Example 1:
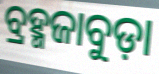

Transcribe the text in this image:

ବ୍ରହ୍ମଜାବୁଡ଼ା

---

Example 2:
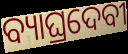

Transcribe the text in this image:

ବ୍ୟାଘ୍ରଦେବୀ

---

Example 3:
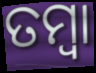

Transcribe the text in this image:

ତମ୍ୱା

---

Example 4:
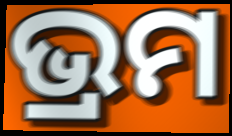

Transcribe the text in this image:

ଭ୍ରମ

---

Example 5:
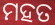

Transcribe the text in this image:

ମହତ